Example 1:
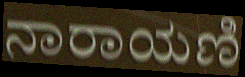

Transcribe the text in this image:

ನಾರಾಯಣಿ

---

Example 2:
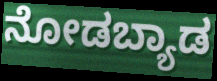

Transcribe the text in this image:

ನೋಡಬ್ಯಾಡ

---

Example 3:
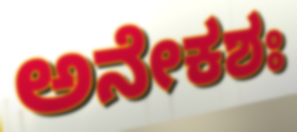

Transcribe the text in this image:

ಅನೇಕಶಃ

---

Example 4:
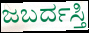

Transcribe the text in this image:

ಜಬರ್ದಸ್ತಿ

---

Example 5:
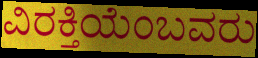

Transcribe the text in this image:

ವಿರಕ್ತಿಯೆಂಬವರು